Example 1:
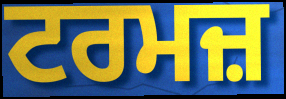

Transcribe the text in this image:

ਟਰਮਜ਼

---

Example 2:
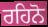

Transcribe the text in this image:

ਰਹਿਨੋ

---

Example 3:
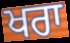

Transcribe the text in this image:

ਖਰਾ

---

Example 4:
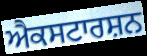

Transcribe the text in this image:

ਐਕਸਟਾਰਸ਼ਨ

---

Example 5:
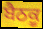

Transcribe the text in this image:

ਬੈਠਕੂ